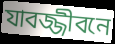
যাবজ্জীবনে